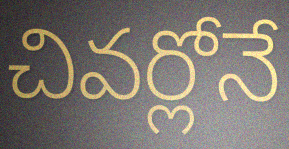
చివర్లోనే